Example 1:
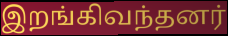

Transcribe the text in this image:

இறங்கிவந்தனர்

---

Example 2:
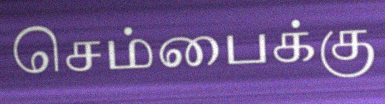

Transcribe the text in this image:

செம்பைக்கு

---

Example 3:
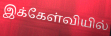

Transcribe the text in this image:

இக்கேள்வியில்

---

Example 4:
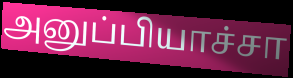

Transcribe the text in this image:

அனுப்பியாச்சா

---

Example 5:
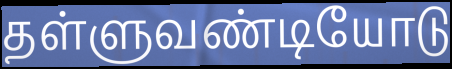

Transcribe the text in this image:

தள்ளுவண்டியோடு